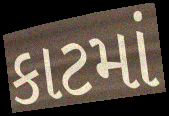
કાટમાં